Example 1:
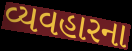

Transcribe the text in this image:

વ્યવહારના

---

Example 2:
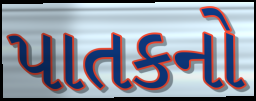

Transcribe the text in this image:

પાતકનો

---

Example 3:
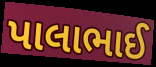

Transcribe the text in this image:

પાલાભાઈ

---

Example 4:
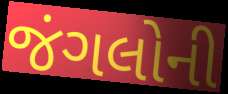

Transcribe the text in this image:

જંગલોની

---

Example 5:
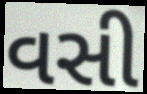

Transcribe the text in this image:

વસી